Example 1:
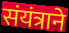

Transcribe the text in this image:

संयंत्राने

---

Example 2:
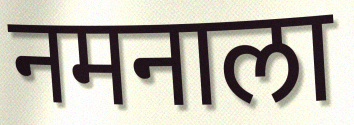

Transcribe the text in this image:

नमनाला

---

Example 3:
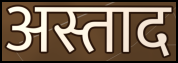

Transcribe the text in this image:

अस्ताद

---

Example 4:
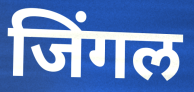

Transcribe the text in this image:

जिंगल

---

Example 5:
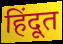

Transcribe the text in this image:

हिंदूत